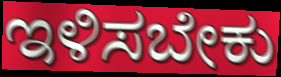
ಇಳಿಸಬೇಕು